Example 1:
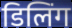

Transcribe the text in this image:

डिलिंग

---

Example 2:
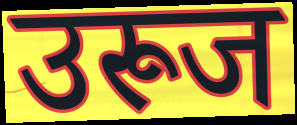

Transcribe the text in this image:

उरूज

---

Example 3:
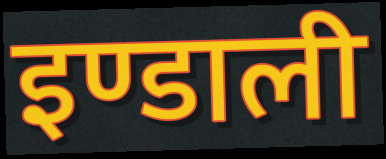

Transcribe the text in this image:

इण्डाली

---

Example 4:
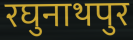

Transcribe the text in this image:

रघुनाथपुर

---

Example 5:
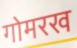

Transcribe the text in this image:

गोमरख